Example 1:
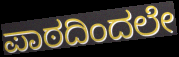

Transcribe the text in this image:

ಪಾಠದಿಂದಲೇ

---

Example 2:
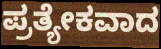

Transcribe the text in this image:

ಪ್ರತ್ಯೇಕವಾದ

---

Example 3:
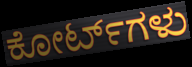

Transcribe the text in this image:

ಕೋರ್ಟ್‌ಗಳು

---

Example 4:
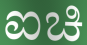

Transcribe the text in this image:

ಐಚಿ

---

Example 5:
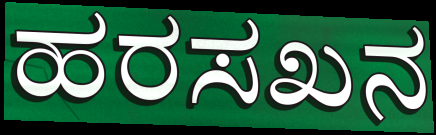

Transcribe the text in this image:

ಹರಸಖನ